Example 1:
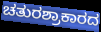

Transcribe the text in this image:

ಚತುರಶ್ರಾಕಾರದ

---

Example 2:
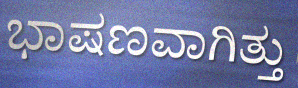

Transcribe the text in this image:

ಭಾಷಣವಾಗಿತ್ತು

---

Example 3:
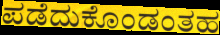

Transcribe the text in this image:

ಪಡೆದುಕೊಂಡಂತಹ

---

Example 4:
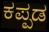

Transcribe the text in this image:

ಕಪ್ಪಡ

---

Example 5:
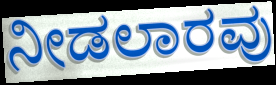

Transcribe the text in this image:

ನೀಡಲಾರವು